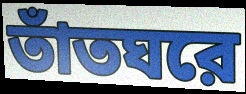
তাঁতঘরে